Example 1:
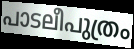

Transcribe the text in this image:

പാടലീപുത്രം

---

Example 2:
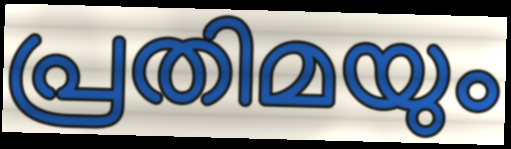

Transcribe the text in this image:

പ്രതിമയും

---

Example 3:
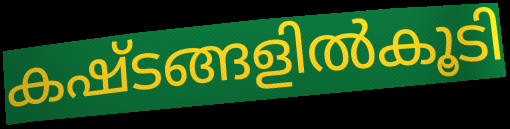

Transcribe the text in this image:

കഷ്ടങ്ങളിൽകൂടി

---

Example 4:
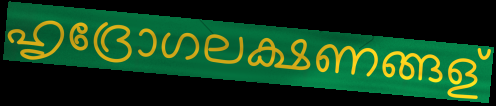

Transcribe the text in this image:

ഹൃദ്രോഗലക്ഷണങ്ങള്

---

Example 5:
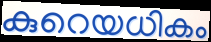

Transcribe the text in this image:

കുറെയധികം